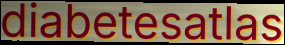
diabetesatlas